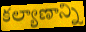
కల్యాణాన్ని